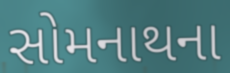
સોમનાથના